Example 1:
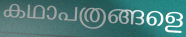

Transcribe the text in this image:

കഥാപത്രങ്ങളെ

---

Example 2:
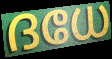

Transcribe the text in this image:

ദധേ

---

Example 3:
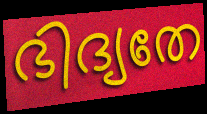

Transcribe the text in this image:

ഭിദ്യതേ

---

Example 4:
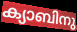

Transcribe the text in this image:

ക്യാബിനു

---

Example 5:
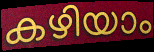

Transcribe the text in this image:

കഴിയാം